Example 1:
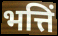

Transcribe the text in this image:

भत्तिं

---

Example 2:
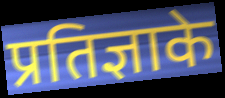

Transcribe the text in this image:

प्रतिज्ञाके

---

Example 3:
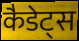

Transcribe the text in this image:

कैडेट्स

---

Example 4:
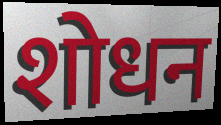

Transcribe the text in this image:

शोधन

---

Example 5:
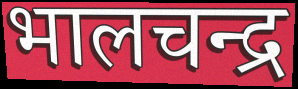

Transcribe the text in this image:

भालचन्द्र